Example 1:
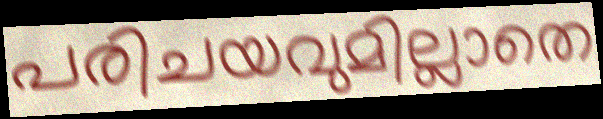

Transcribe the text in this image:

പരിചയവുമില്ലാതെ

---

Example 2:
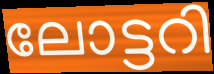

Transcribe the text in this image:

ലോട്ടറി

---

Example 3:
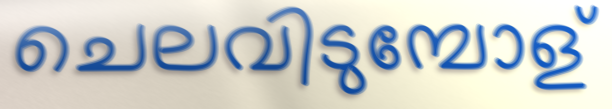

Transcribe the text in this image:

ചെലവിടുമ്പോള്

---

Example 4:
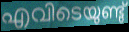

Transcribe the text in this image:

എവിടെയുണ്ടു്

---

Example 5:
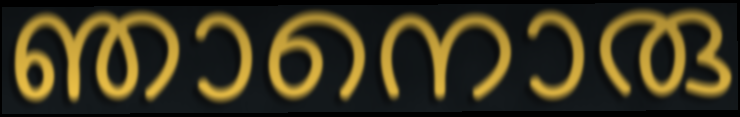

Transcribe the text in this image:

ഞാനൊരു